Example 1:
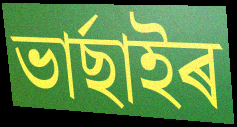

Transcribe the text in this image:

ভাৰ্ছাইৰ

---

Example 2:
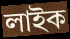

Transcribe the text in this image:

লাইক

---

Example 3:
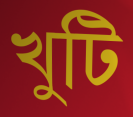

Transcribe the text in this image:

খুটি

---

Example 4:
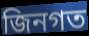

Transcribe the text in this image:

জিনগত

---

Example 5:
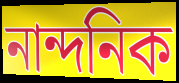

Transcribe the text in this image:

নান্দনিক